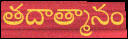
తదాత్మానం